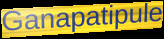
Ganapatipule